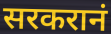
सरकरानं